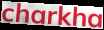
charkha